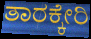
ತಾರಕ್ಕೇರಿ